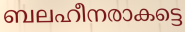
ബലഹീനരാകട്ടെ